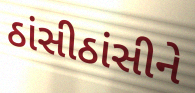
ઠાંસીઠાંસીને